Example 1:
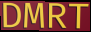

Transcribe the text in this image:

DMRT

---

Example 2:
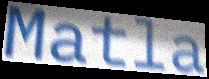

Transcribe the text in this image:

Matla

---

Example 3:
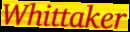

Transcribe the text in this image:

Whittaker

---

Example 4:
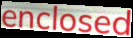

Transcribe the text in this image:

enclosed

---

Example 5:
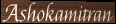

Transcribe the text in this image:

Ashokamitran